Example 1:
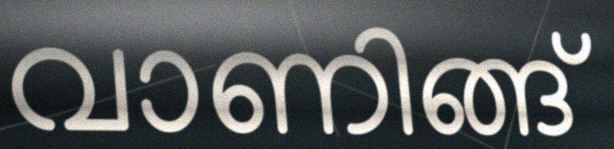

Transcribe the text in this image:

വാണിങ്ങ്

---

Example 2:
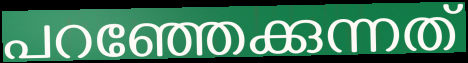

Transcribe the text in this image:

പറഞ്ഞേക്കുന്നത്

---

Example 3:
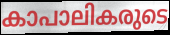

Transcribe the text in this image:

കാപാലികരുടെ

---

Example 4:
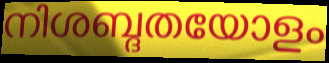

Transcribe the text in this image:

നിശബ്ദതയോളം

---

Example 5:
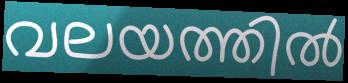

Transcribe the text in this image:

വലയത്തിൽ